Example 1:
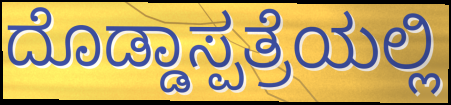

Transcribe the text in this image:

ದೊಡ್ಡಾಸ್ಪತ್ರೆಯಲ್ಲಿ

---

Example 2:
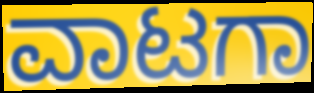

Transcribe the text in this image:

ವಾಟಗಾ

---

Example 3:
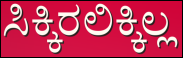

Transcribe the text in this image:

ಸಿಕ್ಕಿರಲಿಕ್ಕಿಲ್ಲ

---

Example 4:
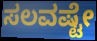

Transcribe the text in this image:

ಸಲವಷ್ಟೇ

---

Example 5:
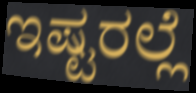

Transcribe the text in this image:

ಇಷ್ಟರಲ್ಲೆ